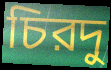
চিরদু